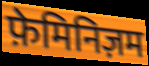
फ़ेमिनिज़म